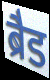
ब्रैड